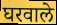
घरवाले